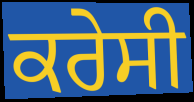
ਕਰੇਸੀ